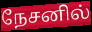
நேசனில்